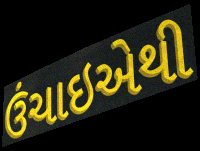
ઉંચાઇએથી